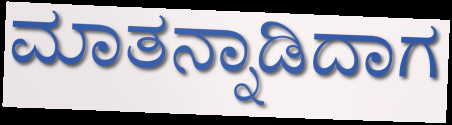
ಮಾತನ್ನಾಡಿದಾಗ